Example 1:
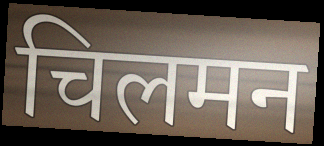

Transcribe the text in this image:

चिलमन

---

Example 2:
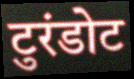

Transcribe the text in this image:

टुरंडोट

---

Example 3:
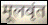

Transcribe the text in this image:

मूलवृंत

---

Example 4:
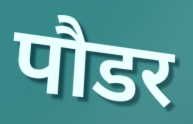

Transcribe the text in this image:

पौडर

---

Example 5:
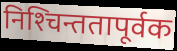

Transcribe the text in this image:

निश्चिन्ततापूर्वक